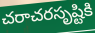
చరాచరసృష్టికి